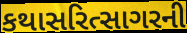
કથાસરિત્સાગરની